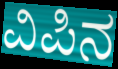
ವಿಪಿನ